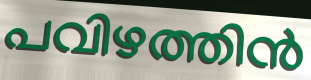
പവിഴത്തിൻ